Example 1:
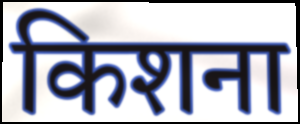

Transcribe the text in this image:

किशना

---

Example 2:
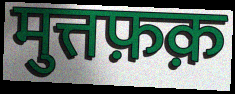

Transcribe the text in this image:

मुत्तफ़क़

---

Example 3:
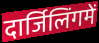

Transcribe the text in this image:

दार्जिलिंगमें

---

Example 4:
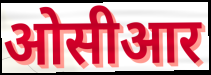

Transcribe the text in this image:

ओसीआर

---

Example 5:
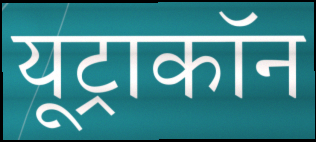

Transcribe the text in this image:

यूट्राकॉन